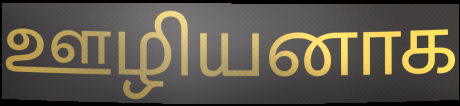
ஊழியனாக